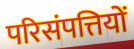
परिसंपत्तियों